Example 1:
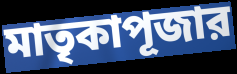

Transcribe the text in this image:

মাতৃকাপূজার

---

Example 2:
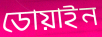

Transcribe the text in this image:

ডোয়াইন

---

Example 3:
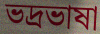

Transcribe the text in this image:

ভদ্রভাষা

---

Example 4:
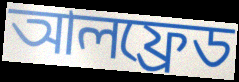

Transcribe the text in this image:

আলফ্রেড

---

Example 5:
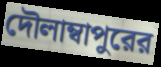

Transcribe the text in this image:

দৌলাম্বাপুরের